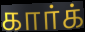
கார்க்